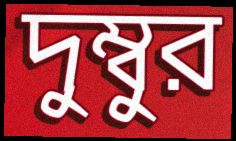
দুম্বুর